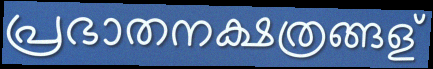
പ്രഭാതനക്ഷത്രങ്ങള്